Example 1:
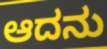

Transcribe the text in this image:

ಆದನು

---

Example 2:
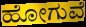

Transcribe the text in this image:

ಹೋಗುವೆ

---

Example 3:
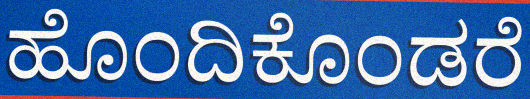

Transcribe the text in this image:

ಹೊಂದಿಕೊಂಡರೆ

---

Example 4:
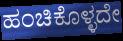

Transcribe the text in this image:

ಹಂಚಿಕೊಳ್ಳದೇ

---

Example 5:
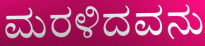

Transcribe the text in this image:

ಮರಳಿದವನು